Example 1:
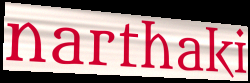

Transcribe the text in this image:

narthaki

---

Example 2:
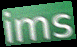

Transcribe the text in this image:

ims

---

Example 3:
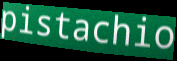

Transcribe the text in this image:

pistachio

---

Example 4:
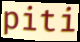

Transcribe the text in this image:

piti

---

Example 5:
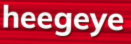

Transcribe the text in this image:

heegeye